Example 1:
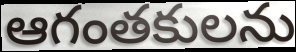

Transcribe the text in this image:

ఆగంతకులను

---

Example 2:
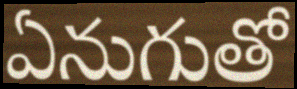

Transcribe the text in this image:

ఏనుగుతో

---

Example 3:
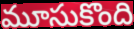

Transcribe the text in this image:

మూసుకొంది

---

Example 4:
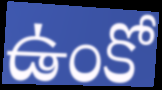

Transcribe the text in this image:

ఉంకో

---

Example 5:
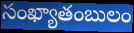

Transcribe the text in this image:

సంఖ్యాతంబులం